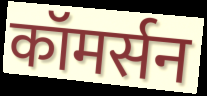
कॉमर्सन